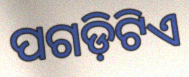
ପଗଡ଼ିଟିଏ